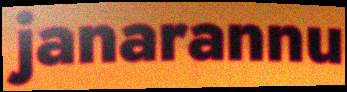
janarannu